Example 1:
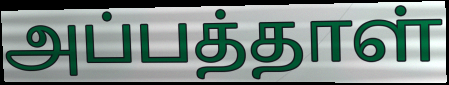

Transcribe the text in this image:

அப்பத்தாள்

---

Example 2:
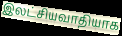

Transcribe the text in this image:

இலட்சியவாதியாக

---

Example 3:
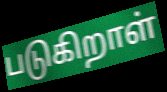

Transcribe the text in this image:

படுகிறாள்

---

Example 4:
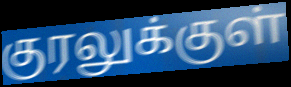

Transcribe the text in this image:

குரலுக்குள்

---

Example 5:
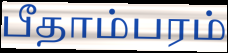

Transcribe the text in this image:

பீதாம்பரம்